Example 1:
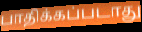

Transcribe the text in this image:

பாதிக்கப்படாது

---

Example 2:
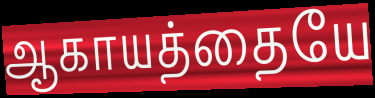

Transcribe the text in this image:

ஆகாயத்தையே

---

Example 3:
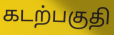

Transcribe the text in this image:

கடற்பகுதி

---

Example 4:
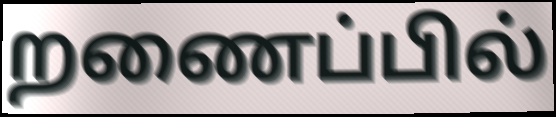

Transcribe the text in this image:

றணைப்பில்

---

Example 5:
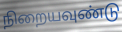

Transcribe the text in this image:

நிறையவுண்டு